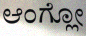
ಆಂಗ್ಲೋ